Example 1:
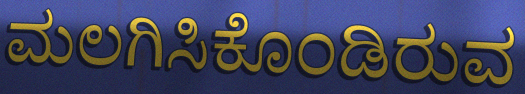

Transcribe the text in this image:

ಮಲಗಿಸಿಕೊಂಡಿರುವ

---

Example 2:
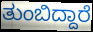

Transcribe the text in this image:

ತುಂಬಿದ್ದಾರೆ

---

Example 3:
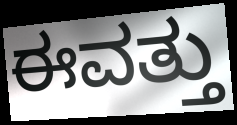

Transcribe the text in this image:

ಈವತ್ತು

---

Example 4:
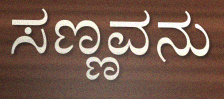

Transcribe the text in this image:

ಸಣ್ಣವನು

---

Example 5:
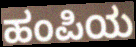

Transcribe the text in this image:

ಹಂಪಿಯ